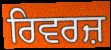
ਰਿਵਰਜ਼